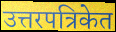
उत्तरपत्रिकेत